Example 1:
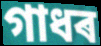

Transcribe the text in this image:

গাধৰ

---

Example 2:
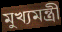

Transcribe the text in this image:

মুখ্যমন্ত্ৰী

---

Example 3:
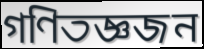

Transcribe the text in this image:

গণিতজ্ঞজন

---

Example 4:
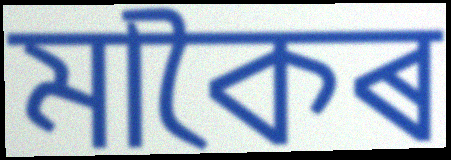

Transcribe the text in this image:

মাকৈৰ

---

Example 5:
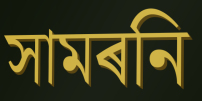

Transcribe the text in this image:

সামৰনি